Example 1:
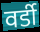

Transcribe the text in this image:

वर्डी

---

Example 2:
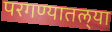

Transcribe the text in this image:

परगण्यातल्या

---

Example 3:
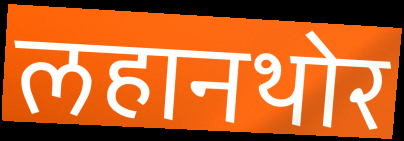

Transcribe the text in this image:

लहानथोर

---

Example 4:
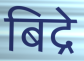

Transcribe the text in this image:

बिद्रे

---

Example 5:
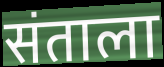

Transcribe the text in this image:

संताला